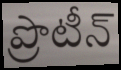
ప్రొటీన్